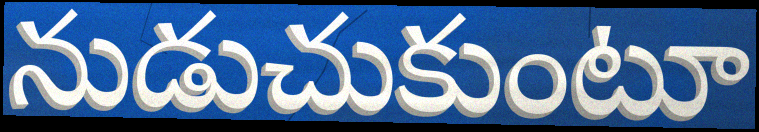
నుడుచుకుంటూ